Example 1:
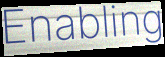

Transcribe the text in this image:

Enabling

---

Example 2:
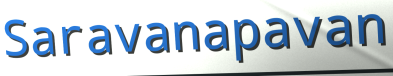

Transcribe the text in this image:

Saravanapavan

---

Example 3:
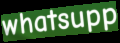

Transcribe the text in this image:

whatsupp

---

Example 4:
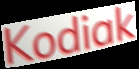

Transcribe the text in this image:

Kodiak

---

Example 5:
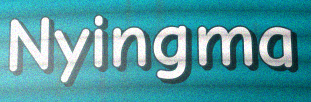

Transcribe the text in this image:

Nyingma